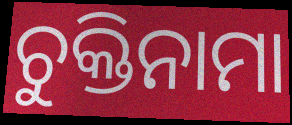
ଚୁକ୍ତିନାମା